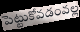
పెట్టుకోవడంవల్ల